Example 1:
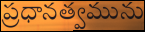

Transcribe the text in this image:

ప్రధానత్వమును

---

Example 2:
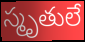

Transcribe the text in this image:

స్మృతులే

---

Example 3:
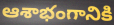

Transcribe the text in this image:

ఆశాభంగానికి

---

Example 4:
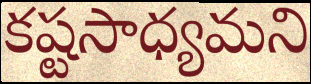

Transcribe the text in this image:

కష్టసాధ్యమని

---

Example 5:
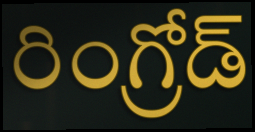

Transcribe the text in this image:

రింగ్రోడ్